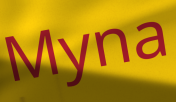
Myna